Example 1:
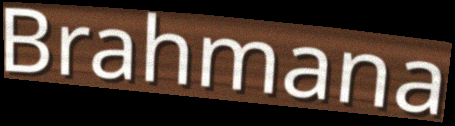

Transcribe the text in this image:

Brahmana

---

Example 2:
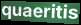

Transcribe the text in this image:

quaeritis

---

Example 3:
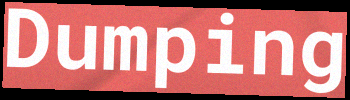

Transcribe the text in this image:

Dumping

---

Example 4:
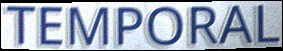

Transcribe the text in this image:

TEMPORAL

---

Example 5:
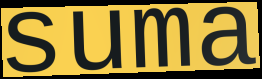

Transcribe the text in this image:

suma